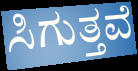
ಸಿಗುತ್ತವೆ